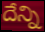
దేన్ని